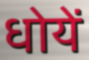
धोयें